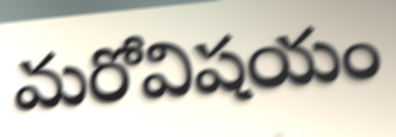
మరోవిషయం